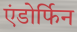
एंडोर्फिन